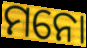
ମନୋ